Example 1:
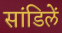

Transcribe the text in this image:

सांडिलें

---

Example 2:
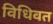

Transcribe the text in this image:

विधिवत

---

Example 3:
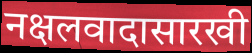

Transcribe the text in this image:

नक्षलवादासारखी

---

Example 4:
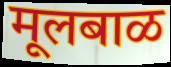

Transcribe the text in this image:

मूलबाळ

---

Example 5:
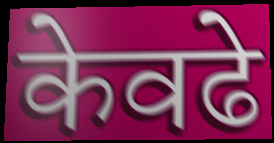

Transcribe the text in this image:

केवढे